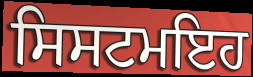
ਸਿਸਟਮਇਹ